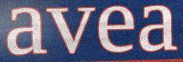
avea